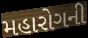
મહારોગની